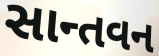
સાન્તવન